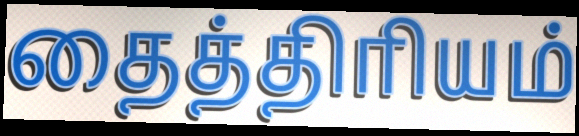
தைத்திரியம்